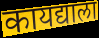
कायद्याला